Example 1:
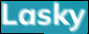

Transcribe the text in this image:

Lasky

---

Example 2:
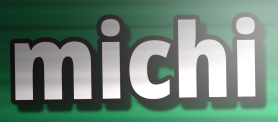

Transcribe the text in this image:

michi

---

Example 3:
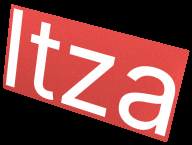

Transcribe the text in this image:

Itza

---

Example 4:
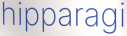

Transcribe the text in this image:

hipparagi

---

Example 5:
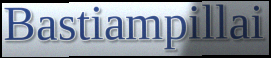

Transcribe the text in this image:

Bastiampillai